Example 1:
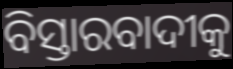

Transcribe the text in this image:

ବିସ୍ତାରବାଦୀକୁ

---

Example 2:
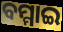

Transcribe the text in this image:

ବମ୍ମାଇ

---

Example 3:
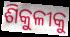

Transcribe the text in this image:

ଶିକୁଳୀକୁ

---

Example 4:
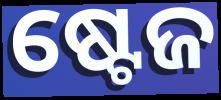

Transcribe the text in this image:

ଷ୍ଟେଜ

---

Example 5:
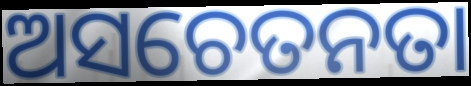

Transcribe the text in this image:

ଅସଚେତନତା